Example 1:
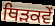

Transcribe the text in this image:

ਥਿੜਕਵੇਂ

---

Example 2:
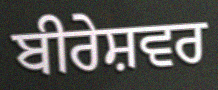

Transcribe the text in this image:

ਬੀਰੇਸ਼ਵਰ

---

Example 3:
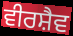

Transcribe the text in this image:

ਵੀਰਸ਼ੈਵ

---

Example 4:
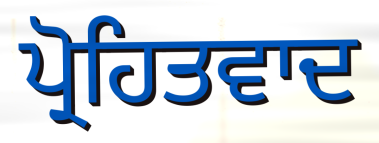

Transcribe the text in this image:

ਪ੍ਰੋਹਿਤਵਾਦ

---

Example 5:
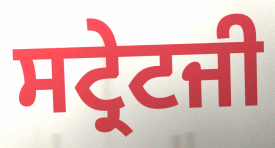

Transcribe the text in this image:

ਸਟ੍ਰੇਟਜੀ